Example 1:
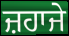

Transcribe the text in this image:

ਜ਼ਹਾਜੇ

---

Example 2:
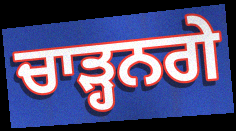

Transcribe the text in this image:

ਚਾੜ੍ਹਨਗੇ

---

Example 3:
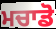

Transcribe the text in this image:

ਮਚਾਡੋ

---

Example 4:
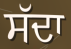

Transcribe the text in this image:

ਸੱਦਾ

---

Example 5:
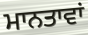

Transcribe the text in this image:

ਮਾਨਤਾਵਾਂ